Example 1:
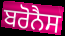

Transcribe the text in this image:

ਬਰੋਨੈਸ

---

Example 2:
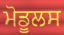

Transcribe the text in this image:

ਮੋਡੂਲਸ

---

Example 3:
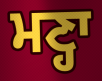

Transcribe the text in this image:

ਮਣ੍ਹਾ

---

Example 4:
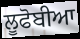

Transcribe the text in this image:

ਲੂਫੋਬੀਆ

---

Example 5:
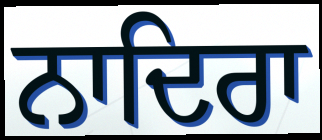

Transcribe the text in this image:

ਨਾਦਿਰਾ